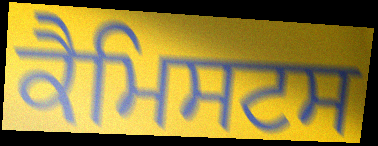
ਕੈਮਿਸਟਸ